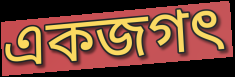
একজগৎ